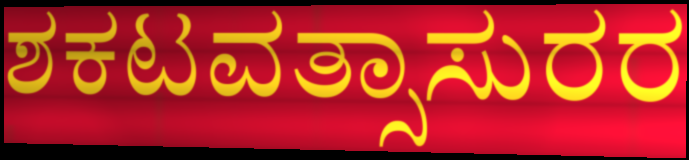
ಶಕಟವತ್ಸಾಸುರರ